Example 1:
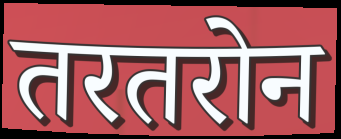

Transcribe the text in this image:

तरतरोन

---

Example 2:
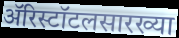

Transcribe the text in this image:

ॲरिस्टॉटलसारख्या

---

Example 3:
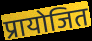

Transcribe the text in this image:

प्रायोजित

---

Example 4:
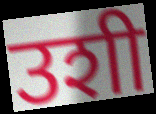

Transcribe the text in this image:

उशी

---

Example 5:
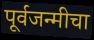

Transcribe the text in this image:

पूर्वजन्मीचा